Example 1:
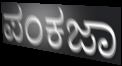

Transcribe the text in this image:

ಪಂಕಜಾ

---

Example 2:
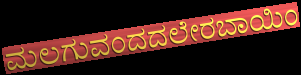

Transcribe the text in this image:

ಮಲಗುವಂದದಲೇರಬಾಯಿಂ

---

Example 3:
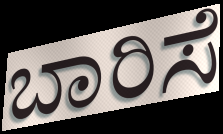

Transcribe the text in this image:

ಬಾರಿಸೆ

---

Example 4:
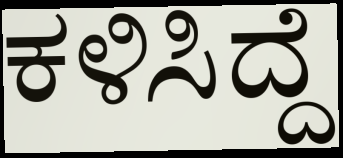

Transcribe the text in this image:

ಕಳಿಸಿದ್ದೆ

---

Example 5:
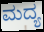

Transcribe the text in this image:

ಮದ್ಯ